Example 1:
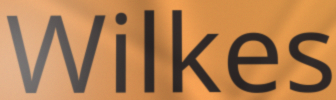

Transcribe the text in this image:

Wilkes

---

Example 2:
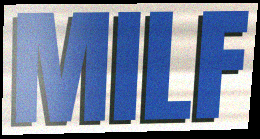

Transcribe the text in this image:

MILF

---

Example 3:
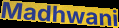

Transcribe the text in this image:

Madhwani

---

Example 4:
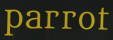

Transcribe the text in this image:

parrot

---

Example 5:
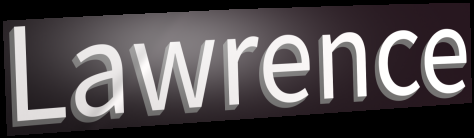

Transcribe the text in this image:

Lawrence